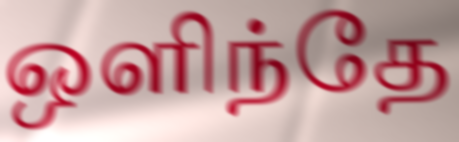
ஒளிந்தே